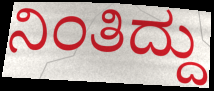
ನಿಂತಿದ್ದು